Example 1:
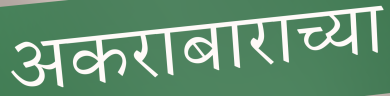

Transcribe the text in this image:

अकराबाराच्या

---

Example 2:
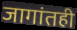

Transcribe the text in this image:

जागांतही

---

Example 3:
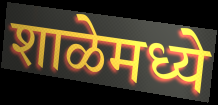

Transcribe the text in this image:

शाळेमध्ये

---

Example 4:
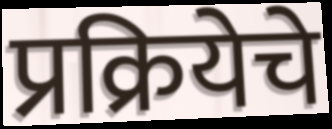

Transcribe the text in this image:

प्रक्रियेचे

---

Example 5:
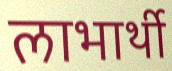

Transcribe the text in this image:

लाभार्थी